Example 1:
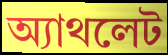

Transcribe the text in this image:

অ্যাথলেট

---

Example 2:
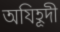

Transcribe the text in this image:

অযিহূদী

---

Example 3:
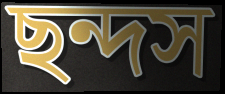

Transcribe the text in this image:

ছন্দস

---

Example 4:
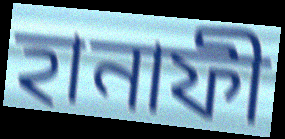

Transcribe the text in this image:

হানাফী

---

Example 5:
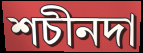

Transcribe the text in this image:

শচীনদা